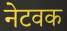
नेटवक